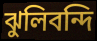
ঝুলিবন্দি